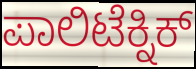
ಪಾಲಿಟೆಕ್ನಿಕ್